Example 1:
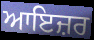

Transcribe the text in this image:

ਆਇਜ਼ਰ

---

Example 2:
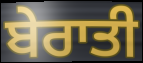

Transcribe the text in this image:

ਬੇਰਾਤੀ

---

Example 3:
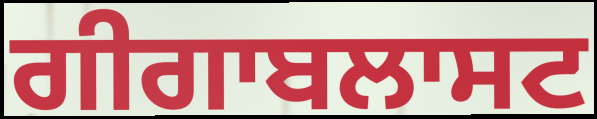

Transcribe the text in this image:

ਗੀਗਾਬਲਾਸਟ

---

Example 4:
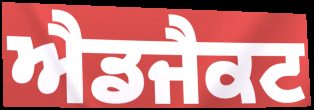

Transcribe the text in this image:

ਐਡਜੈਕਟ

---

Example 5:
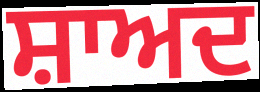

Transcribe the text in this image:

ਸ਼ਾਅਦ